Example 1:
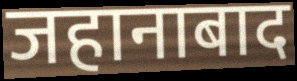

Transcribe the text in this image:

जहानाबाद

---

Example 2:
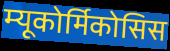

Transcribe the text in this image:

म्यूकोर्मिकोसिस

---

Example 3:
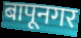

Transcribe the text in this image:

बापूनगर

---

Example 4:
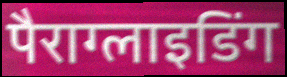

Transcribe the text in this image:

पैराग्लाइडिंग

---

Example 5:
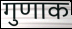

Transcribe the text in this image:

गुणाक